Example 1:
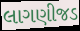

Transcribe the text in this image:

લાગણીજડ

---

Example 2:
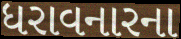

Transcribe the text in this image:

ધરાવનારના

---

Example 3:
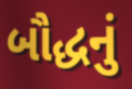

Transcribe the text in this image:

બૌદ્ધનું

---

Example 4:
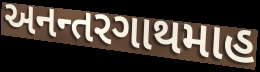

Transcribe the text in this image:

અનન્તરગાથમાહ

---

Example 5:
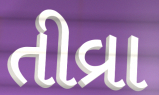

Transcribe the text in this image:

તીવ્રા